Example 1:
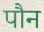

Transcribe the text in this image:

पौन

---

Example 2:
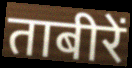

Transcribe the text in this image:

ताबीरें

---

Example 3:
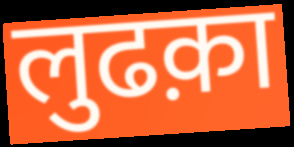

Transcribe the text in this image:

लुढक़ा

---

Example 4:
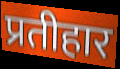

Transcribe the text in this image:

प्रतीहार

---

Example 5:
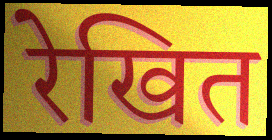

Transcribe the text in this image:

रेखित